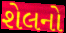
શેલનો